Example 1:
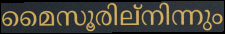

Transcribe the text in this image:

മൈസൂരില്നിന്നും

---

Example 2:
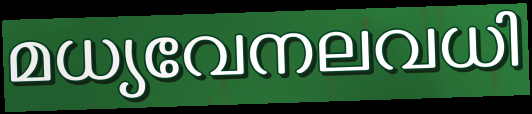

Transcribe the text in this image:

മധ്യവേനലവധി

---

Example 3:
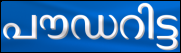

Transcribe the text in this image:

പൗഡറിട്ട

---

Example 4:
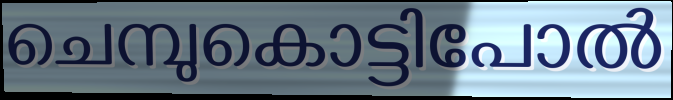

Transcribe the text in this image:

ചെമ്പുകൊട്ടിപോൽ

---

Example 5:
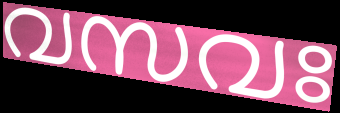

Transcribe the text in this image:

വസവഃ